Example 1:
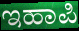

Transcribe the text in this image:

ಇಹಾಪಿ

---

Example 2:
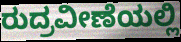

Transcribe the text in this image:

ರುದ್ರವೀಣೆಯಲ್ಲಿ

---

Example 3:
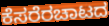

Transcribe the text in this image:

ಕೆಸರೆರಚಾಟದ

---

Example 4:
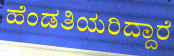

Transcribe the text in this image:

ಹೆಂಡತಿಯರಿದ್ದಾರೆ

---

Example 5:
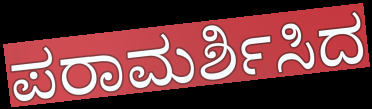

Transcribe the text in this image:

ಪರಾಮರ್ಶಿಸಿದ